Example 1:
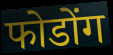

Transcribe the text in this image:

फोडोंग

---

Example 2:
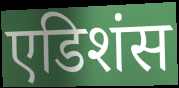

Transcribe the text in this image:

एडिशंस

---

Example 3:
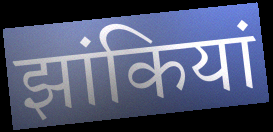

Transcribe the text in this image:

झांकियां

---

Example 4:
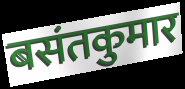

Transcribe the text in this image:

बसंतकुमार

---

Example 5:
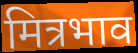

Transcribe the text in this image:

मित्रभाव